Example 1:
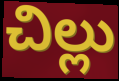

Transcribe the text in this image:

చిల్లు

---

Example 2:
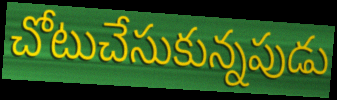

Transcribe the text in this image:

చోటుచేసుకున్నపుడు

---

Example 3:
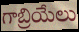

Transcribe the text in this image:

గాబ్రియేలు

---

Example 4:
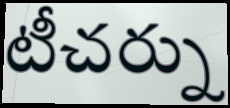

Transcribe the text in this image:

టీచర్ను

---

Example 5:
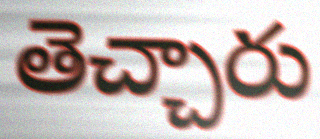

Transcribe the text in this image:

తెచ్చారు